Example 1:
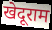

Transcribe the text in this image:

खेदूराम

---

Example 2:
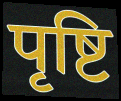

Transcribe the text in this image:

पृष्टि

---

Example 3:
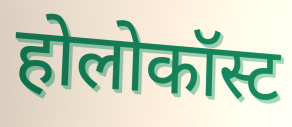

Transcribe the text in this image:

होलोकॉस्ट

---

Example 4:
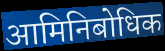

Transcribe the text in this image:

आमिनिबोधिक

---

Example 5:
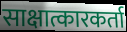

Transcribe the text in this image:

साक्षात्कारकर्ता